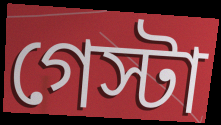
গেস্টা